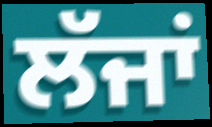
ਲੱਜਾਂ